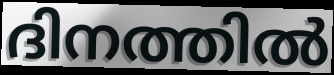
ദിനത്തിൽ